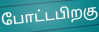
போட்டபிறகு